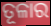
ତୂଳାର